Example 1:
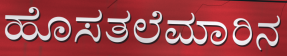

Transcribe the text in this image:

ಹೊಸತಲೆಮಾರಿನ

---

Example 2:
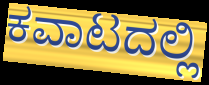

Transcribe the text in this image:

ಕವಾಟದಲ್ಲಿ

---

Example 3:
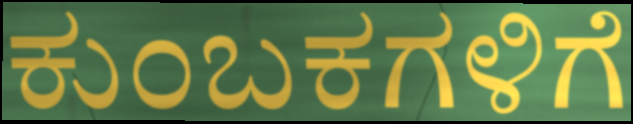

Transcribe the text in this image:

ಕುಂಬಕಗಳಿಗೆ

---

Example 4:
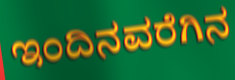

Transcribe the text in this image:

ಇಂದಿನವರೆಗಿನ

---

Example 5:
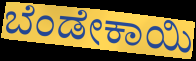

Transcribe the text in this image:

ಬೆಂಡೇಕಾಯಿ